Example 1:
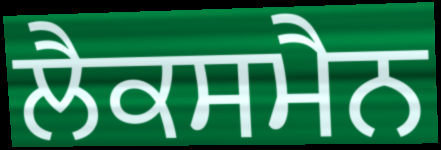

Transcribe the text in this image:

ਲੈਕਸਮੈਨ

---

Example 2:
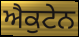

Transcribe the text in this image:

ਐਕੁਟੇਨ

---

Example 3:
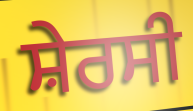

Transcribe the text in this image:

ਸ਼ੇਰਸੀ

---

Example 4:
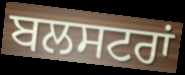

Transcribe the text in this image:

ਬਲਸਟਰਾਂ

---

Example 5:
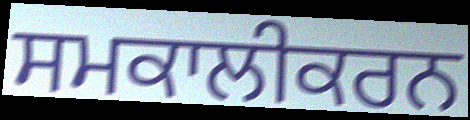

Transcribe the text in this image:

ਸਮਕਾਲੀਕਰਨ